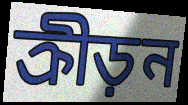
ক্রীড়ন